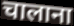
चालाना